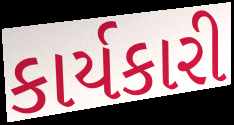
કાર્યકારી